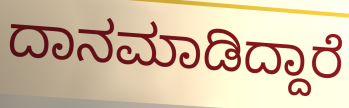
ದಾನಮಾಡಿದ್ದಾರೆ